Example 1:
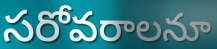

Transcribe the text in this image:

సరోవరాలనూ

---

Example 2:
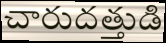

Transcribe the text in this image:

చారుదత్తుడి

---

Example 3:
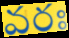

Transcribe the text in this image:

వరః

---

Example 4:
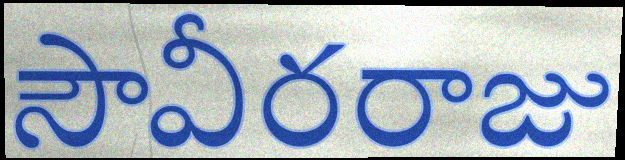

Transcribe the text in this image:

సౌవీరరాజు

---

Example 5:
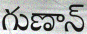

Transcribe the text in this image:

గుణాన్